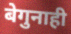
बेगुनाही